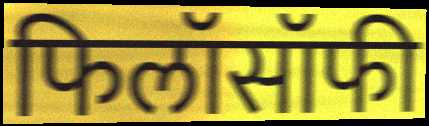
फिलॉसॉफी